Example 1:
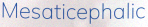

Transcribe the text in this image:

Mesaticephalic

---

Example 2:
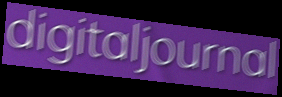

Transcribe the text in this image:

digitaljournal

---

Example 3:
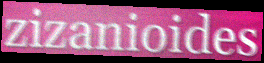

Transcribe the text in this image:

zizanioides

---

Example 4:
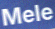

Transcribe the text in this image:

Mele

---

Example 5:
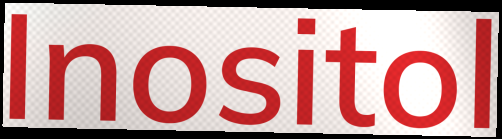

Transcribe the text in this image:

Inositol